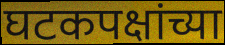
घटकपक्षांच्या